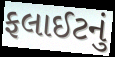
ફલાઈટનું